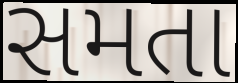
સમતા